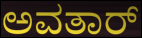
ಅವತಾರ್